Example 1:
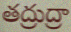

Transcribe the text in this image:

తద్రుద్రా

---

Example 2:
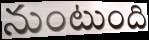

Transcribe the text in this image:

నుంటుంది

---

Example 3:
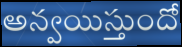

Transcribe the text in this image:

అన్వయిస్తుందో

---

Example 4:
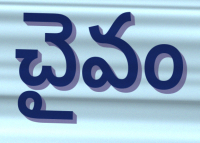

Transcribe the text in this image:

చైవం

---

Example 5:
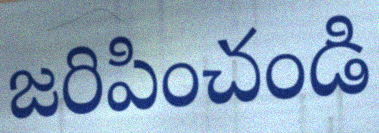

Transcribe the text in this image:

జరిపించండి